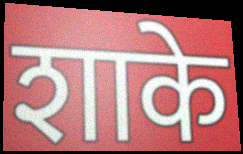
शाके